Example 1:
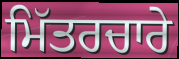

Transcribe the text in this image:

ਮਿੱਤਰਚਾਰੇ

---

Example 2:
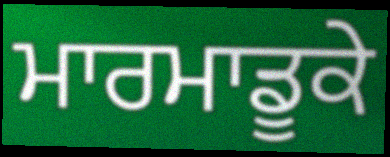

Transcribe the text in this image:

ਮਾਰਮਾਡੂਕੇ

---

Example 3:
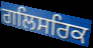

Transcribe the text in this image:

ਗਲਿਸਰਿਕ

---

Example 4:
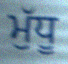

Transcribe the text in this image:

ਮੁੱਧੂ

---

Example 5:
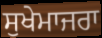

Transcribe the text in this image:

ਸੁਖੇਮਾਜਰਾ